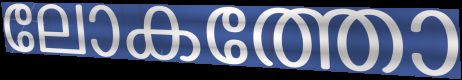
ലോകത്തോ